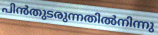
പിൻതുടരുന്നതിൽനിന്നു